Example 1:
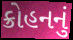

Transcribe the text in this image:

ક્રોહનનું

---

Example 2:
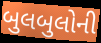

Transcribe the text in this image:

બુલબુલોની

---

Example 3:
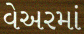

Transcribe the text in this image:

વેઅરમાં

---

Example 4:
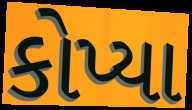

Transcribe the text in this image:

કોપ્યા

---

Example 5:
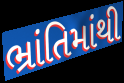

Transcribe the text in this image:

ભ્રાંતિમાંથી